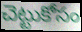
చెట్టుకోసం